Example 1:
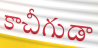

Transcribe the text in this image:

కాచీగుడా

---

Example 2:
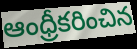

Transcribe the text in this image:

ఆంధ్రీకరించిన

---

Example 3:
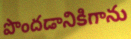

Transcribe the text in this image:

పొందడానికిగాను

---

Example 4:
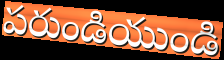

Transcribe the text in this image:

పరుండియుండి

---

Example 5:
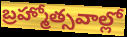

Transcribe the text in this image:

బ్రహ్మోత్సవాల్లో